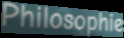
Philosophie